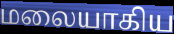
மலையாகிய